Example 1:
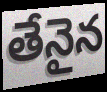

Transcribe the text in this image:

తేనైన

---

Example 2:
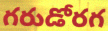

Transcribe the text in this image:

గరుడోరగ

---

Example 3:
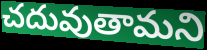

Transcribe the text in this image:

చదువుతామని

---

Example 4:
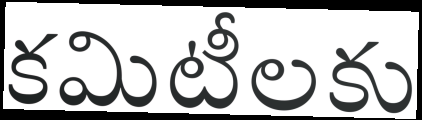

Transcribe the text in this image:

కమిటీలకు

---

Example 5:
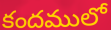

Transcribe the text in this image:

కందములో